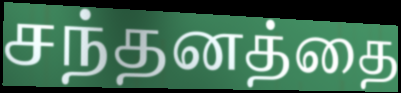
சந்தனத்தை